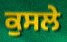
ਕੁਸਲੇ